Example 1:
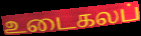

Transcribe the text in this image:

உடைகலப்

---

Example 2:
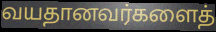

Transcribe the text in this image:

வயதானவர்களைத்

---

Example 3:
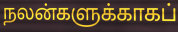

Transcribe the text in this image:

நலன்களுக்காகப்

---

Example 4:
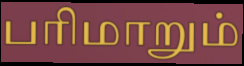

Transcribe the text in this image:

பரிமாறும்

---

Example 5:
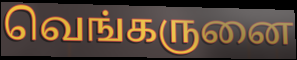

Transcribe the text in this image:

வெங்கருனை